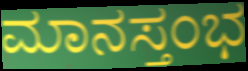
ಮಾನಸ್ತಂಭ